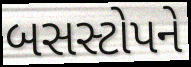
બસસ્ટોપને